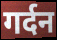
गर्दन